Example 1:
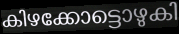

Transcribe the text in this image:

കിഴക്കോട്ടൊഴുകി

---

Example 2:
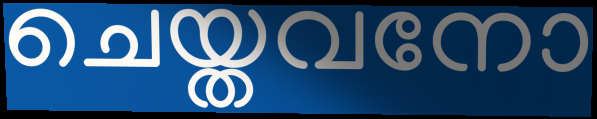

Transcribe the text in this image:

ചെയ്തവനോ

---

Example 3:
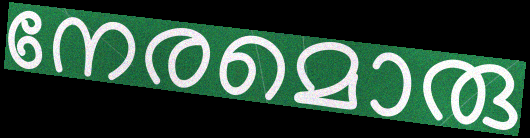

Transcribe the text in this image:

നേരമൊരു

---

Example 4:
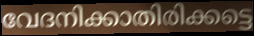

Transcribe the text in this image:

വേദനിക്കാതിരിക്കട്ടെ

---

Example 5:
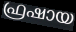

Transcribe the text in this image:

ഫ്രഷായ